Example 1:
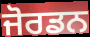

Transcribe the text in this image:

ਜੋਰਡਨ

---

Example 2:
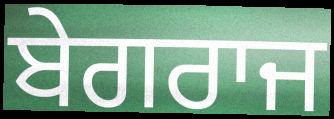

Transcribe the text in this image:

ਬੇਗਰਾਜ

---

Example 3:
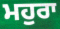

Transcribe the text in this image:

ਮਹੁਰਾ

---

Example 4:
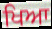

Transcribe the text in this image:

ਖਿਆ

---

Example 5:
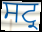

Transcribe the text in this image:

ਸਟ੍ਰ